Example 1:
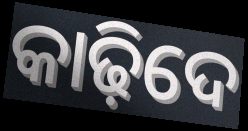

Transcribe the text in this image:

କାଢ଼ିଦେ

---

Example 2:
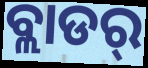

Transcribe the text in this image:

ବ୍ଲାଡର୍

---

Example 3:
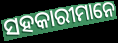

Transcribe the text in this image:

ସହକାରୀମାନେ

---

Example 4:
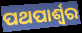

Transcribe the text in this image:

ପଥପାର୍ଶ୍ଵର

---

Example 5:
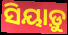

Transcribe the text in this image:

ସିୟାଡ଼ୁ